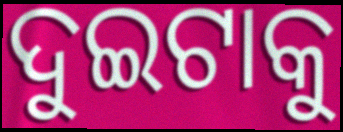
ଦୁଇଟାକୁ